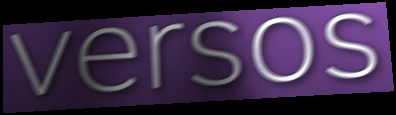
versos